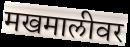
मखमालीवर